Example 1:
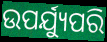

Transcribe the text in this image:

ଉପର୍ଯ୍ୟୁପରି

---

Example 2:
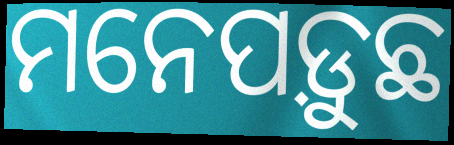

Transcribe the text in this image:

ମନେପଡ଼ୁଛ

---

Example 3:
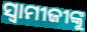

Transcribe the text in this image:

ସ୍ଵାମୀଜୀଙ୍କୁ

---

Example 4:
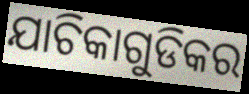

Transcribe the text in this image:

ଯାଚିକାଗୁଡିକର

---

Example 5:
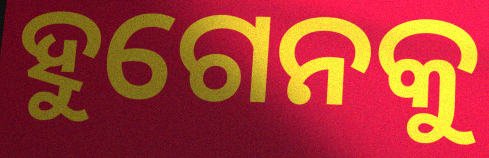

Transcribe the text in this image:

ହୁଗେନକୁ